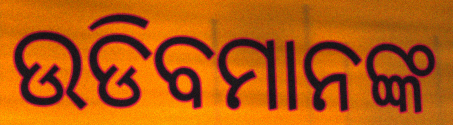
ଉଡିବମାନଙ୍କ